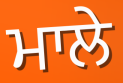
ਮਾਲੇ